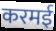
करमई